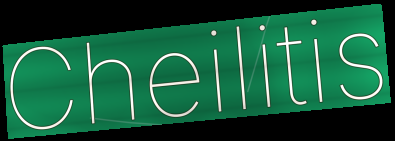
Cheilitis